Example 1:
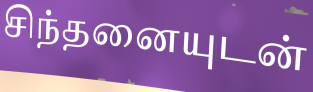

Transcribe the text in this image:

சிந்தனையுடன்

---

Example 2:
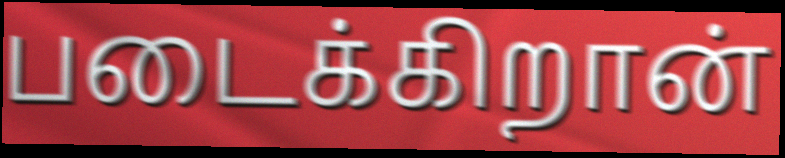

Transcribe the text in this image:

படைக்கிறான்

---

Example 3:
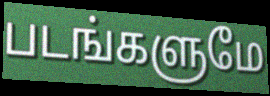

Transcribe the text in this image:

படங்களுமே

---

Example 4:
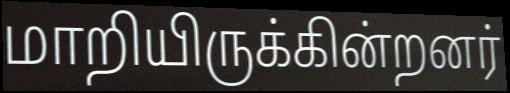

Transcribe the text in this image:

மாறியிருக்கின்றனர்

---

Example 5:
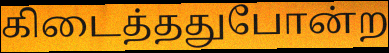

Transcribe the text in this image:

கிடைத்ததுபோன்ற